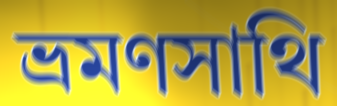
ভ্রমণসাথি